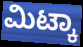
ಮಿಟ್ಕಾ